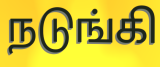
நடுங்கி